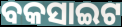
ବକସାଇଟ